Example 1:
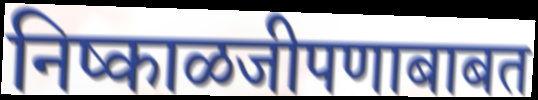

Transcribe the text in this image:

निष्काळजीपणाबाबत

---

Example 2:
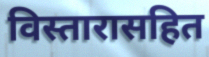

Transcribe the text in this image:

विस्तारासहित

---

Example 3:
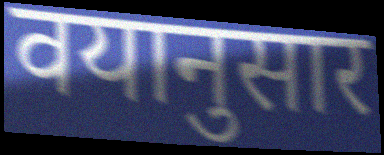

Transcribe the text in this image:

वयानुसार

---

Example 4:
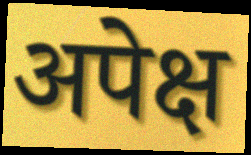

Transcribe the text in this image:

अपेक्ष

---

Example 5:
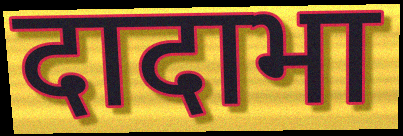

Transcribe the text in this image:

दादाभा